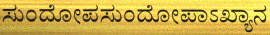
ಸುಂದೋಪಸುಂದೋಪಾಽಖ್ಯಾನ